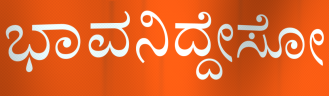
ಭಾವನಿದ್ದೇಸೋ